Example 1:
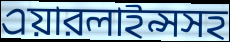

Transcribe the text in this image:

এয়ারলাইন্সসহ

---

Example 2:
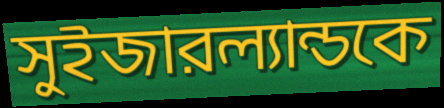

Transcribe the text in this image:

সুইজারল্যান্ডকে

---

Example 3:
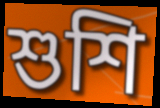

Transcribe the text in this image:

শুশি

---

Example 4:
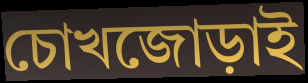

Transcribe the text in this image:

চোখজোড়াই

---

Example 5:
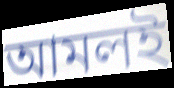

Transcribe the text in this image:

আমলই